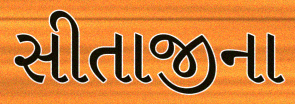
સીતાજીના